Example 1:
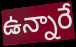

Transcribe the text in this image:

ఉన్నారే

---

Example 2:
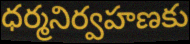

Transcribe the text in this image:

ధర్మనిర్వహణకు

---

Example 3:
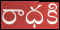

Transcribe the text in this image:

రాధకి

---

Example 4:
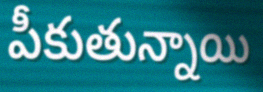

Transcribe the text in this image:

పీకుతున్నాయి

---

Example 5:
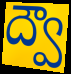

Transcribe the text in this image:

ద్వౌ